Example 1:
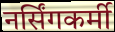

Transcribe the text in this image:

नर्सिंगकर्मी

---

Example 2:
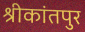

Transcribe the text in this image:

श्रीकांतपुर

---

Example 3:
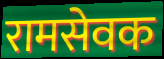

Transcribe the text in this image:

रामसेवक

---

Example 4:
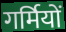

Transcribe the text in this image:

गर्मियों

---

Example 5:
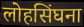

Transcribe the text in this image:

लोहसिंघना